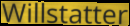
Willstatter